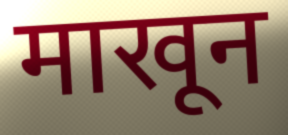
माखून